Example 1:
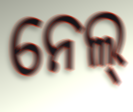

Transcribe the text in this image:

ନେଲ୍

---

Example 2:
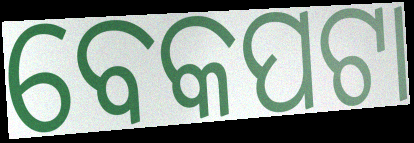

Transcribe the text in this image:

ବେକପଟା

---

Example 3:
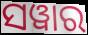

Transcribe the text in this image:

ସୱାର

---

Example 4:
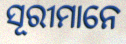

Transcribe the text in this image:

ସୂରୀମାନେ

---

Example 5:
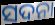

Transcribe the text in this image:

ସଦନା